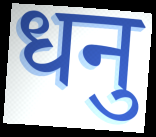
धनु